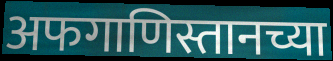
अफगाणिस्तानच्या